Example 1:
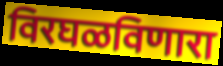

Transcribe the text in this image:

विरघळविणारा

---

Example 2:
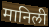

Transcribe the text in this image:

मानिली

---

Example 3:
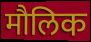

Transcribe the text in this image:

मौलिक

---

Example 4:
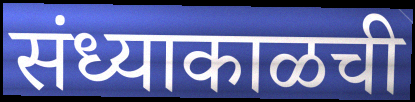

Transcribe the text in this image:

संध्याकाळची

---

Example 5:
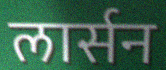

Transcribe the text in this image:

लार्सन